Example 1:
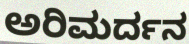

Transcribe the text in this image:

ಅರಿಮರ್ದನ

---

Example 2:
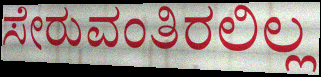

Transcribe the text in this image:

ಸೇರುವಂತಿರಲಿಲ್ಲ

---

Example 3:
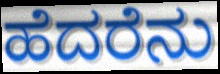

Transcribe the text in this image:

ಹೆದರೆನು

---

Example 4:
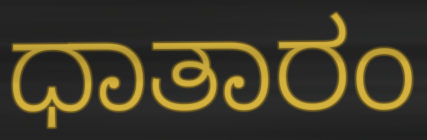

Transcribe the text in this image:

ಧಾತಾರಂ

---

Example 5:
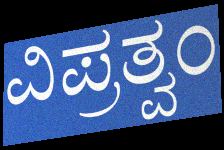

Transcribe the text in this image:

ವಿಪ್ರತ್ವಂ